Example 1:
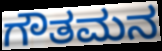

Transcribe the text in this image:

ಗೌತಮನ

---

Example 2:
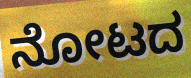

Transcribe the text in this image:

ನೋಟದ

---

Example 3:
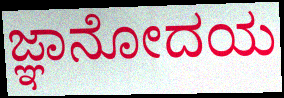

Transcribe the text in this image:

ಜ್ಞಾನೋದಯ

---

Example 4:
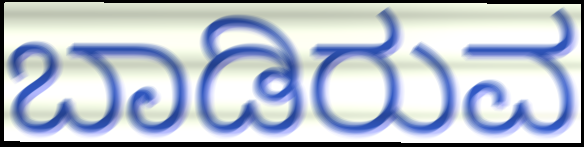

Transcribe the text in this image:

ಬಾಡಿರುವ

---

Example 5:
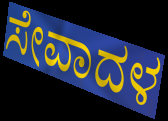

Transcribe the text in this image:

ಸೇವಾದಳ